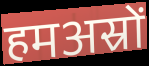
हमअस्रों